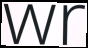
wr